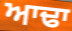
ਆਢਾ